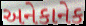
અનેકાનેક